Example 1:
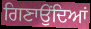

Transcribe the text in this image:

ਗਿਣਾਉਂਦਿਆਂ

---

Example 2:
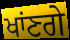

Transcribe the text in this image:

ਖਾਂਣਗੇ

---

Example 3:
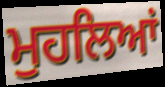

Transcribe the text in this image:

ਮੁਹਲਿਆਂ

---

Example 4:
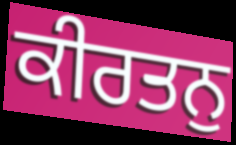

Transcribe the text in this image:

ਕੀਰਤਨੁ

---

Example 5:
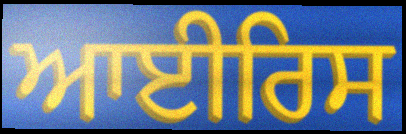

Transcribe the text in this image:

ਆਈਰਿਸ